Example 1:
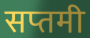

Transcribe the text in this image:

सप्तमी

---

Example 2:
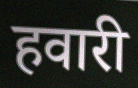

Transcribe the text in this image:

हवारी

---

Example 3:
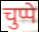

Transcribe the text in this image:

चुप्पे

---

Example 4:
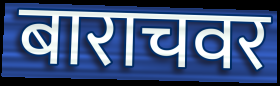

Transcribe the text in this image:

बाराचवर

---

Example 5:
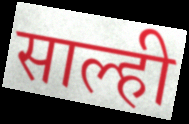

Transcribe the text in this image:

साल्ही